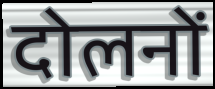
दोलनों